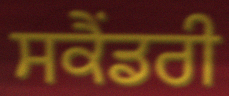
ਸਕੈੰਡਰੀ